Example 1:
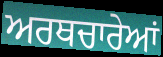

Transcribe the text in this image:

ਅਰਥਚਾਰੇਆਂ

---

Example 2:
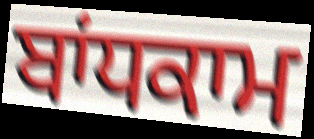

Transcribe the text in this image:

ਬਾਂਧਕਾਮ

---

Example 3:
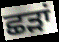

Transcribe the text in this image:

ਛੜਾਂ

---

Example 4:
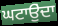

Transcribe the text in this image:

ਘਟਾਉੁਂਦਾ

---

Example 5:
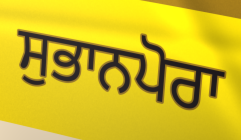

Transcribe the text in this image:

ਸੁਭਾਨਪੋਰਾ